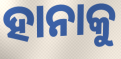
ହାନାକୁ